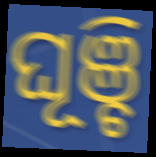
ଘୂଞ୍ଚି